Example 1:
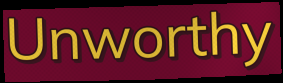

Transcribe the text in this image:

Unworthy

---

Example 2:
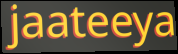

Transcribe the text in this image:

jaateeya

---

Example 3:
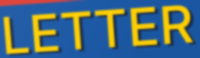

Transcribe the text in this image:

LETTER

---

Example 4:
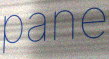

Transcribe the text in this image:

pane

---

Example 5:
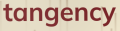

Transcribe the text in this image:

tangency